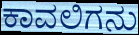
ಕಾವಲಿಗನು